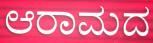
ಆರಾಮದ